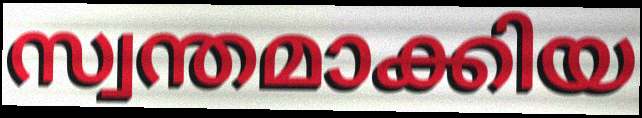
സ്വന്തമാക്കിയ